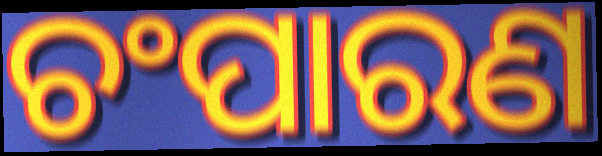
ଚଂପାରଣ